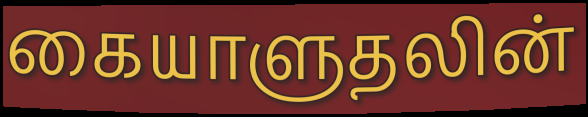
கையாளுதலின்